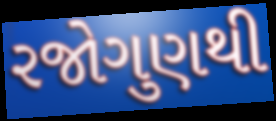
રજોગુણથી